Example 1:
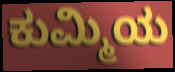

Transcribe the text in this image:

ಕುಮ್ಮಿಯ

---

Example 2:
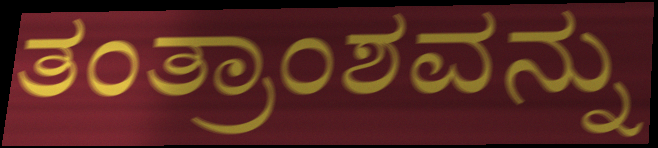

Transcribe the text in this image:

ತಂತ್ರಾಂಶವನ್ನು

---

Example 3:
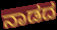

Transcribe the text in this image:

ನಾಡದ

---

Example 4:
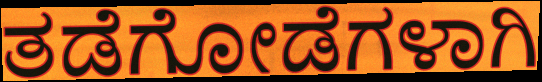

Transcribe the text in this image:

ತಡೆಗೋಡೆಗಳಾಗಿ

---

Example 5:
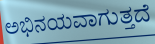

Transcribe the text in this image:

ಅಭಿನಯವಾಗುತ್ತದೆ